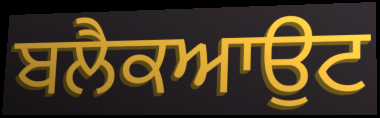
ਬਲੈਕਆਉਟ